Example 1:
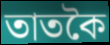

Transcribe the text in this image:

তাতকৈ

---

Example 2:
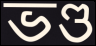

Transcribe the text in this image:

ভণ্ড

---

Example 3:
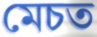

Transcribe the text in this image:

মেচত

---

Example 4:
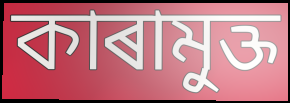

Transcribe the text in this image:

কাৰামুক্ত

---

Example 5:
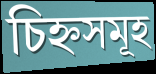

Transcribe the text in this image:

চিহ্নসমূহ